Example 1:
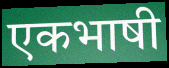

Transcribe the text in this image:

एकभाषी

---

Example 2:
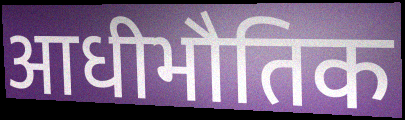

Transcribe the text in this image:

आधीभौतिक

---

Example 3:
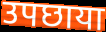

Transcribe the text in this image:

उपछाया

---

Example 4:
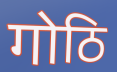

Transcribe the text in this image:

गोठि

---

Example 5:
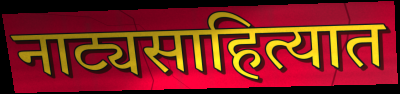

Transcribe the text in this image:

नाट्यसाहित्यात